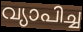
വ്യാപിച്ച